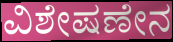
ವಿಶೇಷಣೇನ